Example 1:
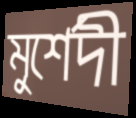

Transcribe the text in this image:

মুর্শেদী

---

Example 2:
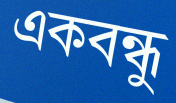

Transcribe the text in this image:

একবন্ধু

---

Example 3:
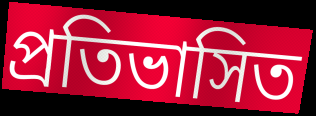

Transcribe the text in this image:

প্রতিভাসিত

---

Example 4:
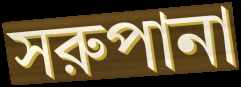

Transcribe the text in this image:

সরুপানা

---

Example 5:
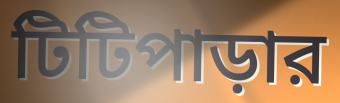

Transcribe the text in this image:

টিটিপাড়ার